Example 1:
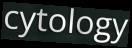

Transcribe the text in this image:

cytology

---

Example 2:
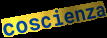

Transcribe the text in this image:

coscienza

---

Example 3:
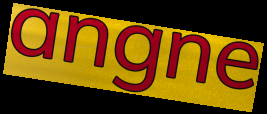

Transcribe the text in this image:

angne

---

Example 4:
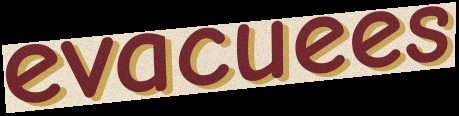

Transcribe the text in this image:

evacuees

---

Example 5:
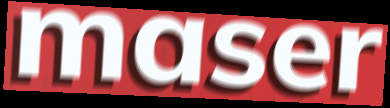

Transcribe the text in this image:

maser